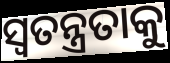
ସ୍ୱତନ୍ତ୍ରତାକୁ